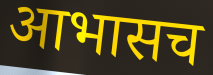
आभासच